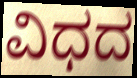
ವಿಧದ